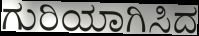
ಗುರಿಯಾಗಿಸಿದ